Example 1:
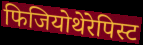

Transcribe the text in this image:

फिजियोथेरेपिस्ट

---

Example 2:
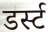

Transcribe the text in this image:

डर्स्ट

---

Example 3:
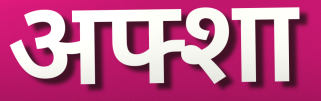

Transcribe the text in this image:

अफ्शा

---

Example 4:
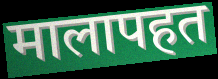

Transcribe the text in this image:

मालापहत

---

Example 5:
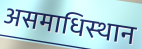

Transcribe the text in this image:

असमाधिस्थान